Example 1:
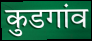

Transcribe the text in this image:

कुडगांव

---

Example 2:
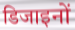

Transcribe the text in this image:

डिजाइनों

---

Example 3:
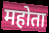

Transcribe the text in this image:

महोता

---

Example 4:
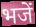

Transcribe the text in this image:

भजें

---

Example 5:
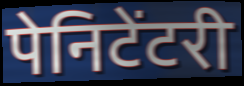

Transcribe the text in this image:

पेनिटेंटरी